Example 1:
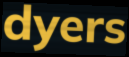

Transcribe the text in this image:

dyers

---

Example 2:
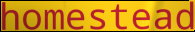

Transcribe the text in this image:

homestead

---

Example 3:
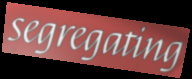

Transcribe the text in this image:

segregating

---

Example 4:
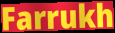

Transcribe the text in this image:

Farrukh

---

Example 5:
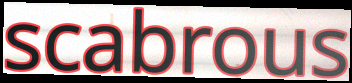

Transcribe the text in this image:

scabrous